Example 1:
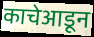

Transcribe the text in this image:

काचेआडून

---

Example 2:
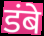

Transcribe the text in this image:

डंबे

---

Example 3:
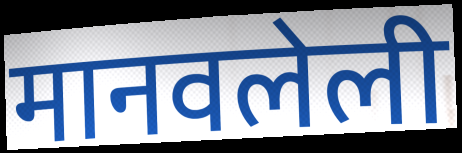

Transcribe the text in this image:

मानवलेली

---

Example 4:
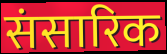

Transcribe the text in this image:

संसारिक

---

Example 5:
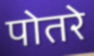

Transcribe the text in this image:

पोतरे